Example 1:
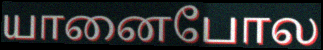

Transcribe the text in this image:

யானைபோல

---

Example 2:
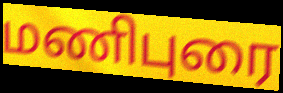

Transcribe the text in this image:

மணிபுரை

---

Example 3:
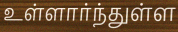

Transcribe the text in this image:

உள்ளார்ந்துள்ள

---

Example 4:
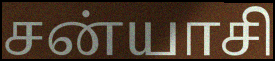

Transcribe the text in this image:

சன்யாசி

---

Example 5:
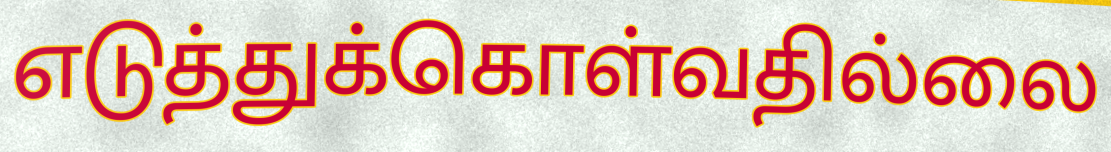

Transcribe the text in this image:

எடுத்துக்கொள்வதில்லை